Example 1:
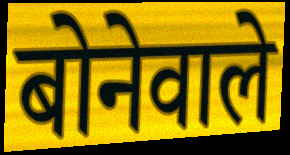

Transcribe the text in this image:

बोनेवाले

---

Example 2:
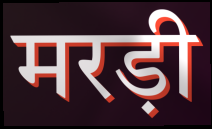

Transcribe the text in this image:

मरड़ी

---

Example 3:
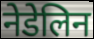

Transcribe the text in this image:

नेडेलिन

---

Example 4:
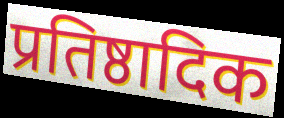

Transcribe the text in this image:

प्रतिष्ठादिक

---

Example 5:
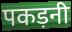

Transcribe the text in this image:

पकड़नी